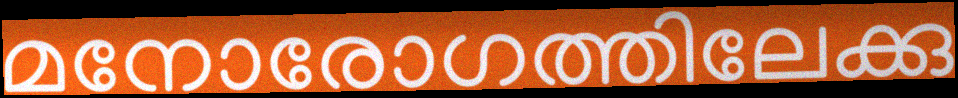
മനോരോഗത്തിലേക്കു